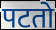
पटतो